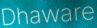
Dhaware